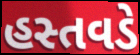
હસ્તવડે